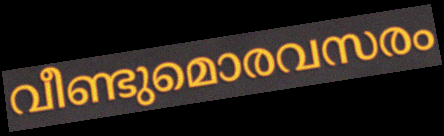
വീണ്ടുമൊരവസരം